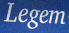
Legem